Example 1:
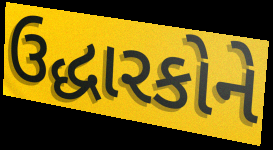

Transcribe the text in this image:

ઉદ્ધારકોને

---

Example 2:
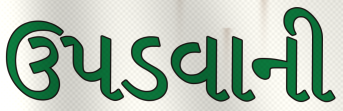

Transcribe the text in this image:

ઉપડવાની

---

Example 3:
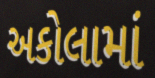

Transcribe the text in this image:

અકોલામાં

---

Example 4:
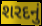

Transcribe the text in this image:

શરદનું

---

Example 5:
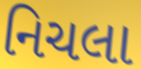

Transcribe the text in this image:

નિચલા